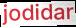
jodidar